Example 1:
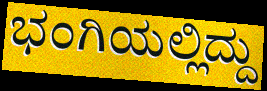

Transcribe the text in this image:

ಭಂಗಿಯಲ್ಲಿದ್ದು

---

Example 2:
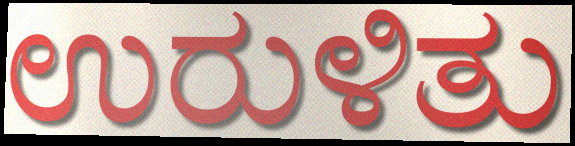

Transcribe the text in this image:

ಉರುಳಿತು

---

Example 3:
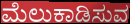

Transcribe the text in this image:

ಮೆಲುಕಾಡಿಸುವ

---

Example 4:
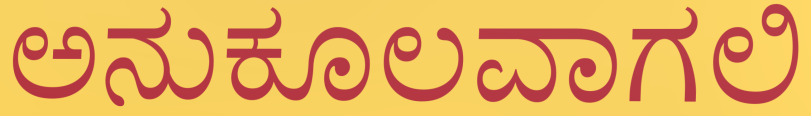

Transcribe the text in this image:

ಅನುಕೂಲವಾಗಲಿ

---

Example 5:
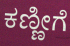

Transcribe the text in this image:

ಕಣ್ಣೀಗೆ